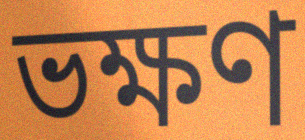
ভক্ষণ